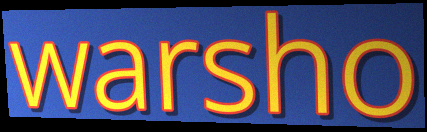
warsho